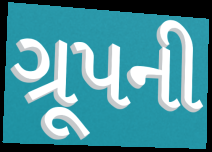
ગ્રૂપની